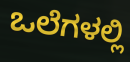
ಒಲೆಗಳಲ್ಲಿ